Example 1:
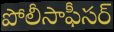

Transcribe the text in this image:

పోలీసాఫీసర్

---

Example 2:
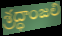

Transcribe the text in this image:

శ్రద్ధాంజలి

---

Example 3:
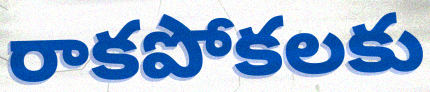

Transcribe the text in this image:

రాకపోకలకు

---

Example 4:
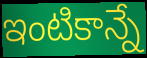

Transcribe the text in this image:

ఇంటికాన్నే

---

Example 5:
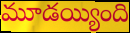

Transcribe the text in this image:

మూడయ్యింది